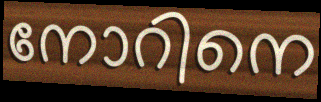
നോറിനെ